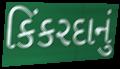
કિંકરદાનું